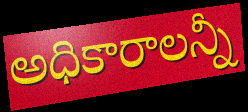
అధికారాలన్నీ